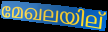
മേഖലയില്